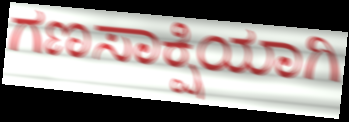
ಗಣಸಾಕ್ಷಿಯಾಗಿ